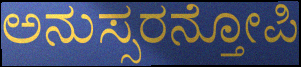
ಅನುಸ್ಸರನ್ತೋಪಿ